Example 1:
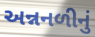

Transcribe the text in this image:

અન્નનળીનું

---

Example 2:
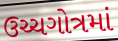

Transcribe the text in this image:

ઉચ્ચગોત્રમાં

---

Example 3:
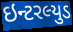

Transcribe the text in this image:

ઇન્ટરલ્યુડ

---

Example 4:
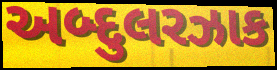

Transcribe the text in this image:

અબ્દુલરઝાક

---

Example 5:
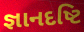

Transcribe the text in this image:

જ્ઞાનદષ્ટિ